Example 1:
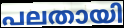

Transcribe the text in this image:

പലതായി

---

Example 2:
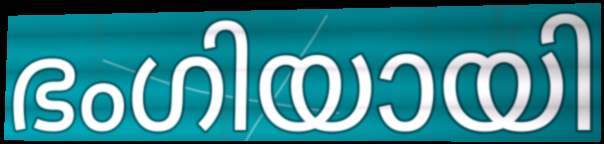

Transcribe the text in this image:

ഭംഗിയായി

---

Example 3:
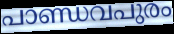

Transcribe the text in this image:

പാണ്ഡവപുരം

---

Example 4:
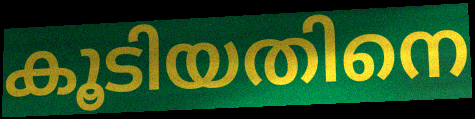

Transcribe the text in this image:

കൂടിയതിനെ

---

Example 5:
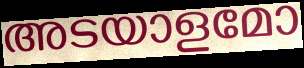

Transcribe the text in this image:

അടയാളമോ